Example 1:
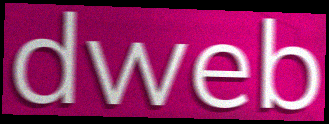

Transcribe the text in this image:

dweb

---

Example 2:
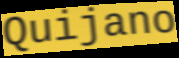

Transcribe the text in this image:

Quijano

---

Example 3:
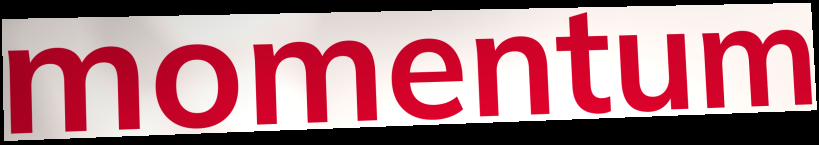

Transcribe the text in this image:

momentum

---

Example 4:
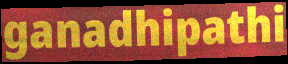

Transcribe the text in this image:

ganadhipathi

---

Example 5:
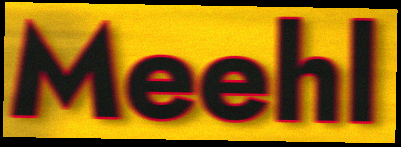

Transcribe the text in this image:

Meehl